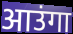
आउंगा